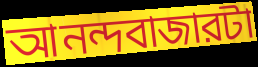
আনন্দবাজারটা